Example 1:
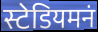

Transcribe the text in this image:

स्टेडियमनं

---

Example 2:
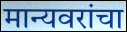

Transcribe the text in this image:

मान्यवरांचा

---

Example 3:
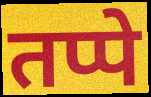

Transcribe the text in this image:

तप्पे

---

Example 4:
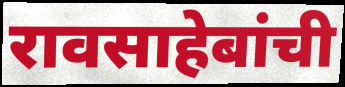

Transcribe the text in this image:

रावसाहेबांची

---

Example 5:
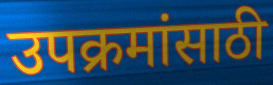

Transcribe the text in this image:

उपक्रमांसाठी